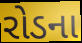
રોડના